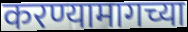
करण्यामागच्या